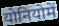
योनियोमें